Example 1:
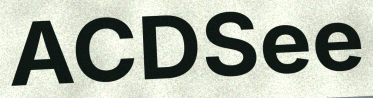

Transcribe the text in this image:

ACDSee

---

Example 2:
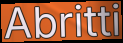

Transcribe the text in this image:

Abritti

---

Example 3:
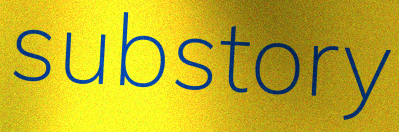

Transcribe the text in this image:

substory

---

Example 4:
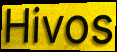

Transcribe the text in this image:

Hivos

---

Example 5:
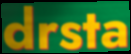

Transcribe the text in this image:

drsta